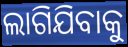
ଲାଗିଯିବାକୁ